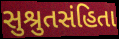
સુશ્રુતસંહિતા